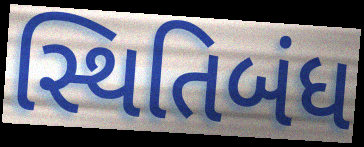
સ્થિતિબંધ